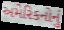
અમેરિકનોનું